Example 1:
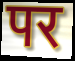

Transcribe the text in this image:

पर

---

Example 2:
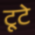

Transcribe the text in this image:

टूटे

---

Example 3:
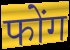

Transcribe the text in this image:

फोंग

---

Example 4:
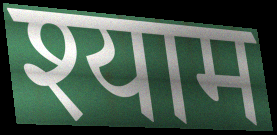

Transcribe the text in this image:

श्‍याम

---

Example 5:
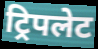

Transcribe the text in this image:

ट्रिपलेट